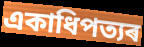
একাধিপত্যৰ